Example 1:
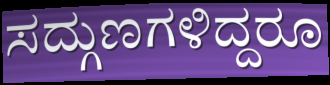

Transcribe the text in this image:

ಸದ್ಗುಣಗಳಿದ್ದರೂ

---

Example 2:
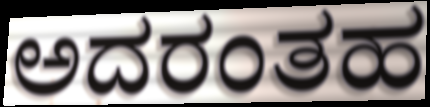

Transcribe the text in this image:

ಅದರಂತಹ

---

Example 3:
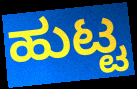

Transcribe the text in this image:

ಹುಟ್ಟ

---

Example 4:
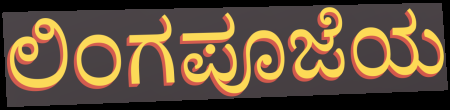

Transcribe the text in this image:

ಲಿಂಗಪೂಜೆಯ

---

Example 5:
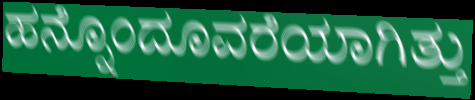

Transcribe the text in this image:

ಹನ್ನೊಂದೂವರೆಯಾಗಿತ್ತು